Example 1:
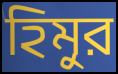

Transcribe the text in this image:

হিমুর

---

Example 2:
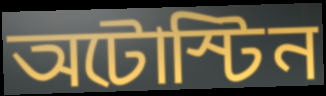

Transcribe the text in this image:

অটোস্টিন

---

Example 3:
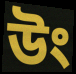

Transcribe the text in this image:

উং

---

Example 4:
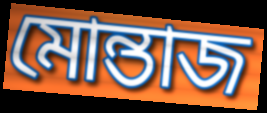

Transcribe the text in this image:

মোন্তাজ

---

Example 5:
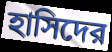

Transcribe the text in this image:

হাসিদের